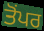
ਤੋਂਪਰ